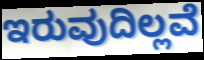
ಇರುವುದಿಲ್ಲವೆ